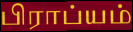
பிராப்யம்